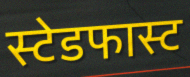
स्टेडफास्ट